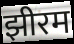
झीरम